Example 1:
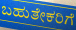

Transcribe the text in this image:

ಬಹುತೇಕರಿಗೆ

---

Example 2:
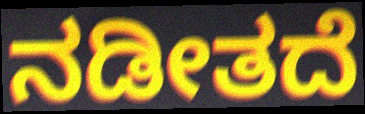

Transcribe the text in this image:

ನಡೀತದೆ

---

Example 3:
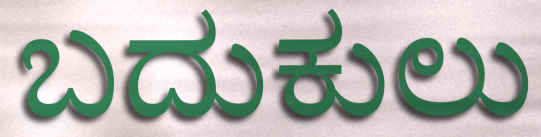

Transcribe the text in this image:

ಬದುಕುಲು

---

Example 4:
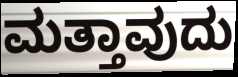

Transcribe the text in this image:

ಮತ್ತಾವುದು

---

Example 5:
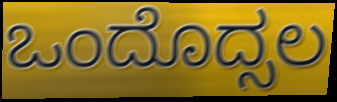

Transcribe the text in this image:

ಒಂದೊದ್ಸಲ